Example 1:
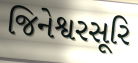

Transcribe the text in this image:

જિનેશ્વરસૂરિ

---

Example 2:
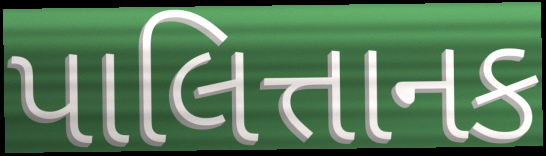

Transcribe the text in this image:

પાલિત્તાનક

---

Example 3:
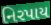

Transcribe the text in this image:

નિરપાય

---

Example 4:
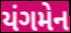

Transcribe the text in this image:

યંગમેન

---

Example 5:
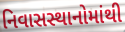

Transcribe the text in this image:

નિવાસસ્થાનોમાંથી